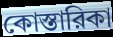
কোস্তারিকা